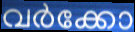
വർക്കോ